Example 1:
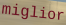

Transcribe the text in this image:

miglior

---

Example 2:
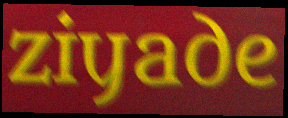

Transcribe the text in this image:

ziyade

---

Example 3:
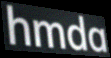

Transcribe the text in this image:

hmda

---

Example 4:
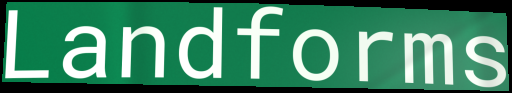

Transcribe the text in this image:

Landforms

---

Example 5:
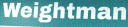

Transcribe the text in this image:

Weightman